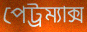
পেট্রম্যাক্স